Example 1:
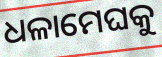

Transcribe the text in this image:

ଧଳାମେଘକୁ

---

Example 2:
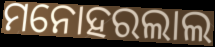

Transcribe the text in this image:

ମନୋହରଲାଲ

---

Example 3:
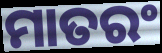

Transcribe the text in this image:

ମାତରଂ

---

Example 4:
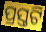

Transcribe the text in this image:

ପ୍ରସ୍ତଟି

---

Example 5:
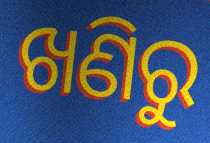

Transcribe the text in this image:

ଖଣିରୁ